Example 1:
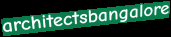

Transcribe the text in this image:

architectsbangalore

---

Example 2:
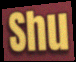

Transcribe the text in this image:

Shu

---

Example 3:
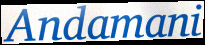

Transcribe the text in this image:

Andamani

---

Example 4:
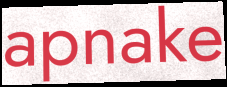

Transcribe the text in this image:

apnake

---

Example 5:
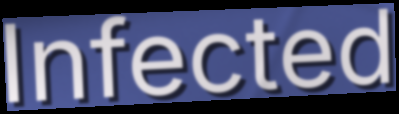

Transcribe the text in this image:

Infected